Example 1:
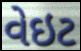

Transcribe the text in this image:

વેઇટ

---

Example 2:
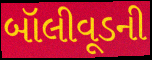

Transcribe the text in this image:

બૉલીવૂડની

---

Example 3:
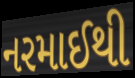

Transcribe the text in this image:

નરમાઈથી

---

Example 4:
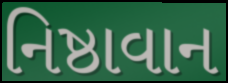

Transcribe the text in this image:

નિષ્ઠાવાન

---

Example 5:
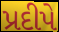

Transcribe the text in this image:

પ્રદીપે